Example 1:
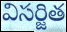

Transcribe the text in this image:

విసర్జిత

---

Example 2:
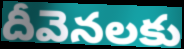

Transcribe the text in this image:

దీవెనలకు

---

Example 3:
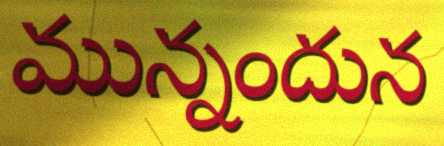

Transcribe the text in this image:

మున్నందున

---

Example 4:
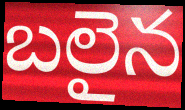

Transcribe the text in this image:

బలైన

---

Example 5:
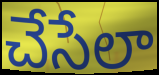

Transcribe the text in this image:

చేసేలా